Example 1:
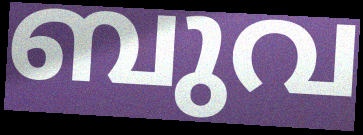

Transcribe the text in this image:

ബുവ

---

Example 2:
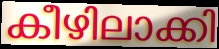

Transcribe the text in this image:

കീഴിലാക്കി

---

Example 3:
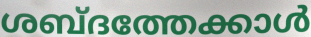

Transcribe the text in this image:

ശബ്ദത്തേക്കാൾ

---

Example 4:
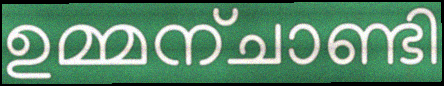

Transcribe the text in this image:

ഉമ്മന്ചാണ്ടി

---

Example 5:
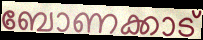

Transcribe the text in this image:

ബോണക്കാട്